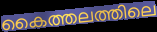
കൈത്തലത്തിലെ